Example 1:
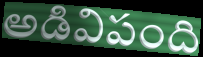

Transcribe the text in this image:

అడివిపంది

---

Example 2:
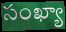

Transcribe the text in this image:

సంఖ్యా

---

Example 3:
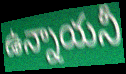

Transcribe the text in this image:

ఉన్నాయనీ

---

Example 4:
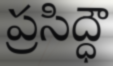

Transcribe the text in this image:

ప్రసిద్ధౌ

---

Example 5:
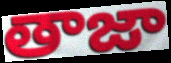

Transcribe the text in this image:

తాజా